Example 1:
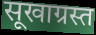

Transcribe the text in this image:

सूखाग्रस्‍त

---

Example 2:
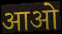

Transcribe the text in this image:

आओ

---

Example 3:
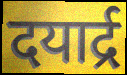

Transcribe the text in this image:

दयार्द्र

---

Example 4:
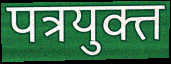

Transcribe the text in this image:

पत्रयुक्त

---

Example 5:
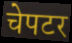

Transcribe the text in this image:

चेपटर